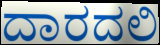
ದಾರದಲಿ